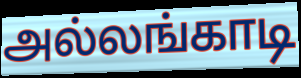
அல்லங்காடி